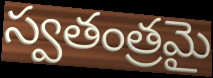
స్వతంత్రమై